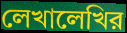
লেখালেখির